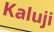
Kaluji